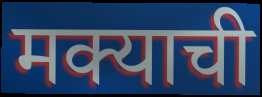
मक्याची